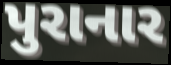
પુરાનાર